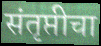
संतृप्तीचा